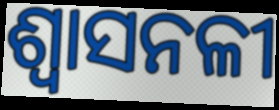
ଶ୍ଵାସନଳୀ